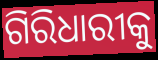
ଗିରିଧାରୀକୁ